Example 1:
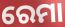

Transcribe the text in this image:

ରେମା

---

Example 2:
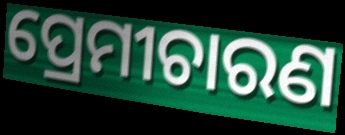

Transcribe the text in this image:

ପ୍ରେମୀଚାରଣ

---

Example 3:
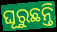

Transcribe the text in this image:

ଘୂରୁଛନ୍ତି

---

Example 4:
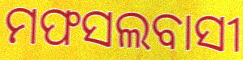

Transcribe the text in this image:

ମଫସଲବାସୀ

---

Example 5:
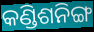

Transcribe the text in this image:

କଣ୍ଡିଶନିଙ୍ଗ